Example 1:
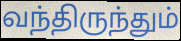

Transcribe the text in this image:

வந்திருந்தும்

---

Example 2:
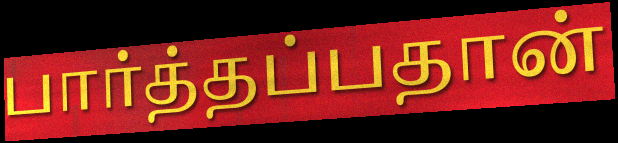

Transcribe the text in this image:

பார்த்தப்பதான்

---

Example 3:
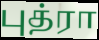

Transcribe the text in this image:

புத்ரா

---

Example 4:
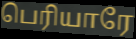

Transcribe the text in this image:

பெரியாரே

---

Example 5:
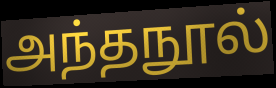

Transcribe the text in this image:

அந்தநூல்